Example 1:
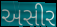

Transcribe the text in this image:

અસીર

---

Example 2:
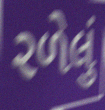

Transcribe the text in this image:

રળેલું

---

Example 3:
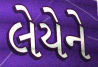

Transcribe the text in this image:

લેયેને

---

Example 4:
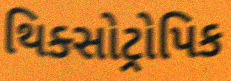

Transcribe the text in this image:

થિક્સોટ્રોપિક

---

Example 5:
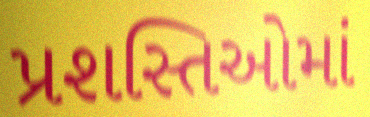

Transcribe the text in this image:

પ્રશસ્તિઓમાં